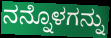
ನನ್ನೊಳಗನ್ನು